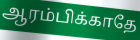
ஆரம்பிக்காதே